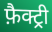
फ़ैक्ट्री